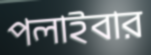
পলাইবার